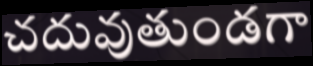
చదువుతుండగా